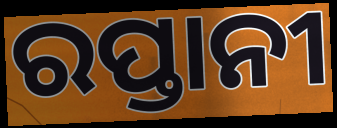
ରପ୍ତାନୀ